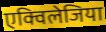
एक्विलेजिया